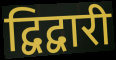
द्विद्वारी